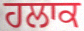
ਹਲਾਕ